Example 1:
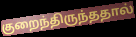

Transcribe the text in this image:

குறைந்திருந்ததால்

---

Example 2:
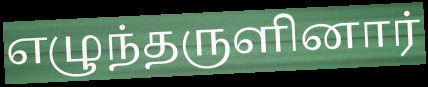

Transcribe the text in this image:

எழுந்தருளினார்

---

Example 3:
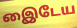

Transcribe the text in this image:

இைடேய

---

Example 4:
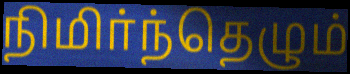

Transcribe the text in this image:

நிமிர்ந்தெழும்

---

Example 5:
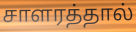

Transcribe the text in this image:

சாளரத்தால்